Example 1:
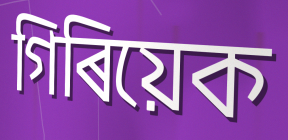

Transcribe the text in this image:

গিৰিয়েক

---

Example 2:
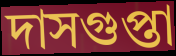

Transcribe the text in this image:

দাসগুপ্তা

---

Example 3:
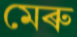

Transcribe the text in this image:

মেৰু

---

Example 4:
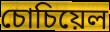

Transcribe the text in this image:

চোচিয়েল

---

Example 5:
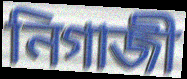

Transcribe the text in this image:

নিগাজী